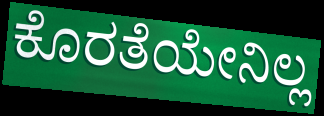
ಕೊರತೆಯೇನಿಲ್ಲ